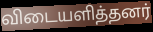
விடையளித்தனர்